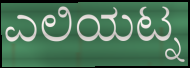
ಎಲಿಯಟ್ನ